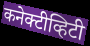
कनेक्टीव्हिटी